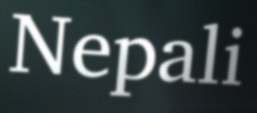
Nepali